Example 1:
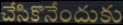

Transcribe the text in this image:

చేసికొనేందుకు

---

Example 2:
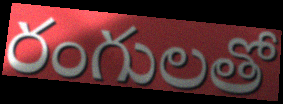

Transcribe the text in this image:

రంగులతో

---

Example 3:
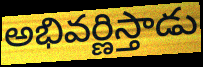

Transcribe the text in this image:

అభివర్ణిస్తాడు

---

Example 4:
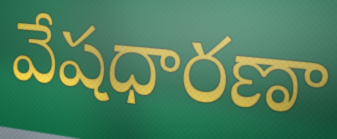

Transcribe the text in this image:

వేషధారణా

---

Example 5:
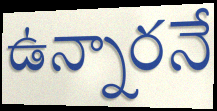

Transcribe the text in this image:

ఉన్నారనే